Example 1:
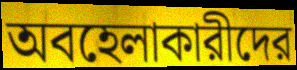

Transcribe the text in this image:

অবহেলাকারীদের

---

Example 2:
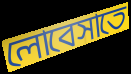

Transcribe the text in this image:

লোবেসাতে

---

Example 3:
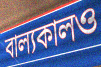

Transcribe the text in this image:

বাল্যকালও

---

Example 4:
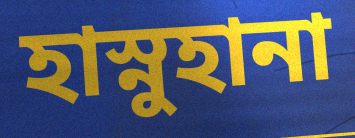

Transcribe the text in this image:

হাস্নুহানা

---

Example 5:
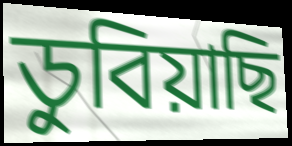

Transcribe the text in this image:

ডুবিয়াছি